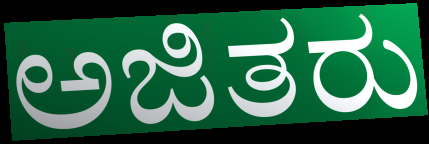
ಅಜಿತರು